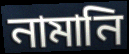
নামানি